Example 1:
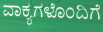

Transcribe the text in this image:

ವಾಕ್ಯಗಳೊಂದಿಗೆ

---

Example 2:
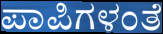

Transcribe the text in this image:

ಪಾಪಿಗಳಂತೆ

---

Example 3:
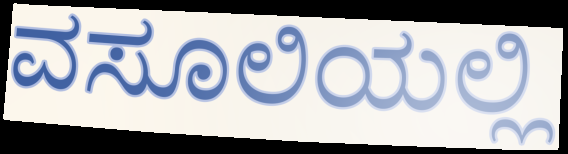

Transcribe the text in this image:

ವಸೂಲಿಯಲ್ಲಿ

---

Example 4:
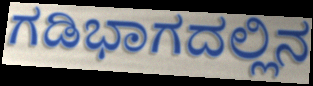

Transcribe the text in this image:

ಗಡಿಭಾಗದಲ್ಲಿನ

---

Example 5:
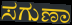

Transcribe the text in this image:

ಸಗುಣಾ